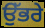
ਉੱਭਰੇ